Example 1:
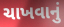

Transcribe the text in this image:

ચાખવાનું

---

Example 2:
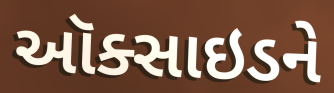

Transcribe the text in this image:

ઑક્સાઇડને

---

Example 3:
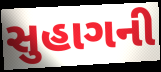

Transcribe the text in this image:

સુહાગની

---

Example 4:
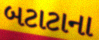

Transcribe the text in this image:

બટાટાના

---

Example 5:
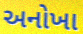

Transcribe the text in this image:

અનોખા